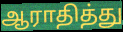
ஆராதித்து